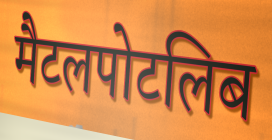
मैटलपोटलिब